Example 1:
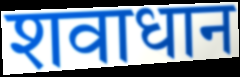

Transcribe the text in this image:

शवाधान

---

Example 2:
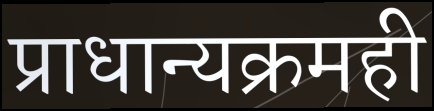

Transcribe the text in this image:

प्राधान्यक्रमही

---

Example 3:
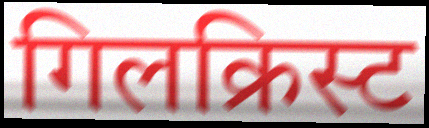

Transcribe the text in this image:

गिलक्रिस्‍ट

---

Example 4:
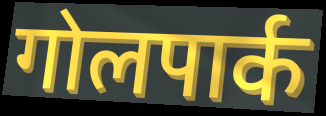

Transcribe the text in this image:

गोलपार्क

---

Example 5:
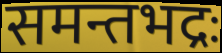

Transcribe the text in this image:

समन्तभद्रः